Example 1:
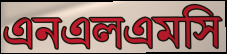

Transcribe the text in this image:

এনএলএমসি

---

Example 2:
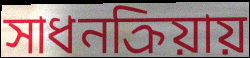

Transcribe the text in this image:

সাধনক্রিয়ায়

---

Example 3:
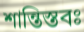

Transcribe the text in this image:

শান্তিস্তবঃ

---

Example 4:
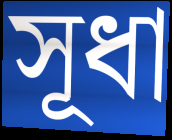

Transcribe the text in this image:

সূধা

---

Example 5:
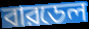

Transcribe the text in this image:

বারডেল